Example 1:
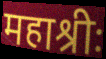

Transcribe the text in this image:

महाश्रीः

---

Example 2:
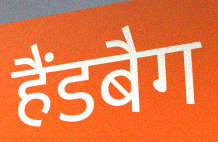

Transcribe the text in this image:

हैंडबैग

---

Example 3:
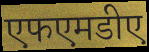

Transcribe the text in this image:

एफएमडीए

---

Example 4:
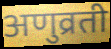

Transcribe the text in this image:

अणुव्रती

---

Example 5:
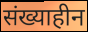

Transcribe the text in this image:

संख्याहीन